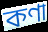
কণা